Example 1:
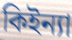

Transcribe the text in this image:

কিইন্যা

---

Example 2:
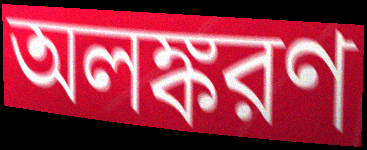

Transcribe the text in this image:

অলঙ্করণ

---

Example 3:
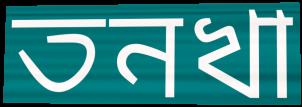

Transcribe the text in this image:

তনখা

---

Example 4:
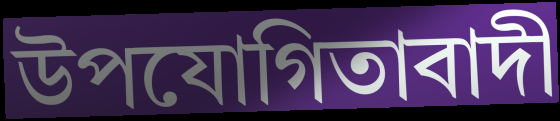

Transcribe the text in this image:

উপযোগিতাবাদী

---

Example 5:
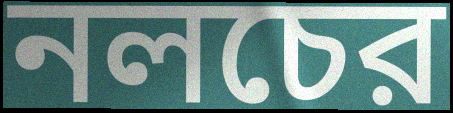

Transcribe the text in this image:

নলচের